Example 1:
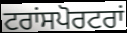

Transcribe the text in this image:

ਟਰਾਂਸਪੋਰਟਰਾਂ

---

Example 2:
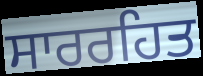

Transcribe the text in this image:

ਸਾਰਰਹਿਤ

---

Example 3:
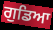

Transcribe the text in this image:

ਗੁਡਿਆ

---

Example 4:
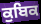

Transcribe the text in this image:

ਕੁਬਿਕ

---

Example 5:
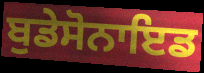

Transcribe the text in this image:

ਬੁਡੇਸੋਨਾਇਡ